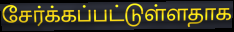
சேர்க்கப்பட்டுள்ளதாக